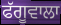
ਫੱਗੂਵਾਲਾ